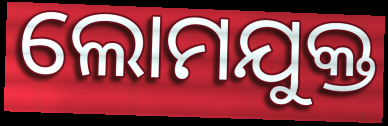
ଲୋମଯୁକ୍ତ